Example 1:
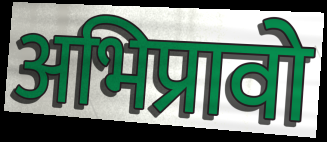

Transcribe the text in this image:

अभिप्रावो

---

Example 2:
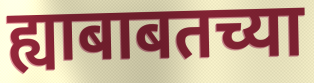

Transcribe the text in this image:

ह्याबाबतच्या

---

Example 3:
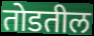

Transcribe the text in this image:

तोडतील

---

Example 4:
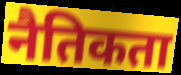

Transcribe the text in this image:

नैतिकता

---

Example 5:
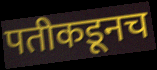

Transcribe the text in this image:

पतीकडूनच